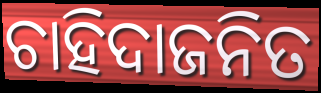
ଚାହିଦାଜନିତ